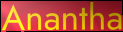
Anantha